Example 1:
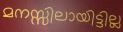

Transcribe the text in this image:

മനസ്സിലായിട്ടില്ല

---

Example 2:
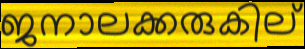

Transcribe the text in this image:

ജനാലക്കരുകില്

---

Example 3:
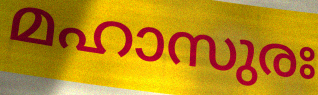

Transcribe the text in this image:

മഹാസുരഃ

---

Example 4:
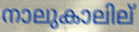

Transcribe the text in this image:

നാലുകാലില്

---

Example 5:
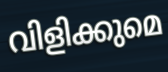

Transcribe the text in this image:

വിളിക്കുമെ